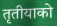
तृतीयाको